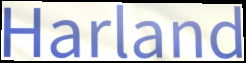
Harland